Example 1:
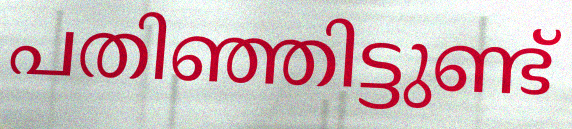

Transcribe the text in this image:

പതിഞ്ഞിട്ടുണ്ട്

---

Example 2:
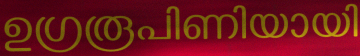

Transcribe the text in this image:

ഉഗ്രരൂപിണിയായി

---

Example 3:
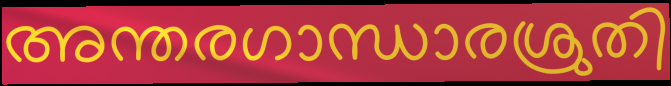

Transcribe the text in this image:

അന്തരഗാന്ധാരശ്രുതി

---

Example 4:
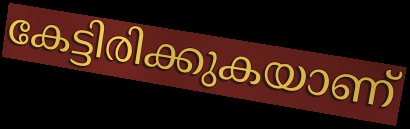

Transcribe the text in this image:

കേട്ടിരിക്കുകയാണ്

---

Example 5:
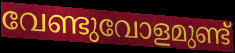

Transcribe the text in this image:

വേണ്ടുവോളമുണ്ട്